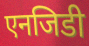
एनजिडी